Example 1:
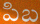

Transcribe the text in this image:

పిబ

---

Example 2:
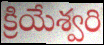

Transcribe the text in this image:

క్రియేశ్వరి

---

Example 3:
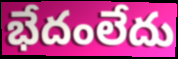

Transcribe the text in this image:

భేదంలేదు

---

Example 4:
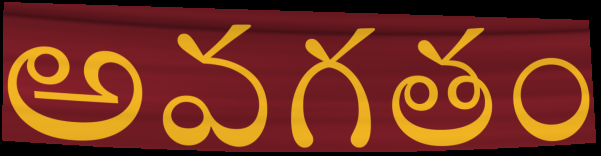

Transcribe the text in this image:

అవగతం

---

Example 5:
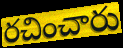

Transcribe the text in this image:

రచించారు